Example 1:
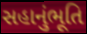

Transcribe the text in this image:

સહાનુંભૂતિ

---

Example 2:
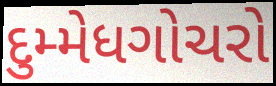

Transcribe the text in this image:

દુમ્મેધગોચરો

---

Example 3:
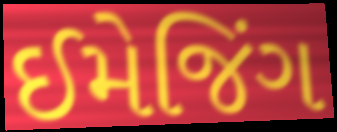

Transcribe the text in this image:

ઈમેજિંગ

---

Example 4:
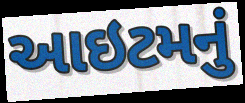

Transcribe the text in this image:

આઇટમનું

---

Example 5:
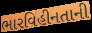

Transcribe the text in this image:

ભારવિહીનતાની